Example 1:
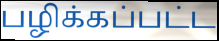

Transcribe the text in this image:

பழிக்கப்பட்ட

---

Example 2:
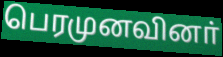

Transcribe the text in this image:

பெரமுனவினர்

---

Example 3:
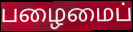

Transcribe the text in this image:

பழைமைப்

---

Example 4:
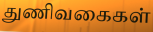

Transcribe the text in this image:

துணிவகைகள்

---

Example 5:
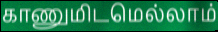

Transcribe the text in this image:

காணுமிடமெல்லாம்